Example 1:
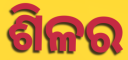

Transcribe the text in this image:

ଶିଳର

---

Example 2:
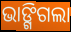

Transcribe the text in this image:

ଭାଙ୍ଗିଗଲା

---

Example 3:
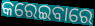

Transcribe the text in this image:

କରେଇବାରେ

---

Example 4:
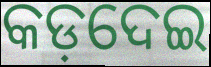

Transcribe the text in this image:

କଡ଼ଦେଇ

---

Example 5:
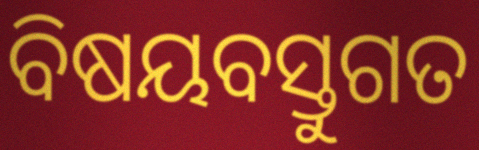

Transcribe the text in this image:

ବିଷୟବସ୍ତୁଗତ